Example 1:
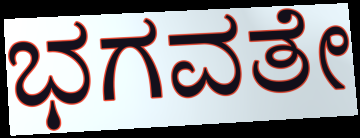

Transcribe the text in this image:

ಭಗವತೇ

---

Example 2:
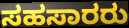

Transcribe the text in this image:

ಸಹಸಾರರು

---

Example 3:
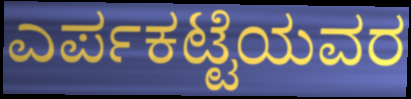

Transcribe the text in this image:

ಎರ್ಪಕಟ್ಟೆಯವರ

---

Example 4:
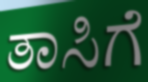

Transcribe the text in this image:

ತಾಸಿಗೆ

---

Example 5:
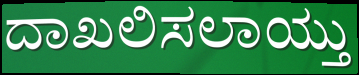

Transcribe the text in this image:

ದಾಖಲಿಸಲಾಯ್ತು